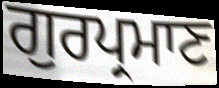
ਗੁਰਪ੍ਰਮਾਣ